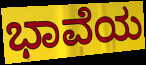
ಭಾವೆಯ